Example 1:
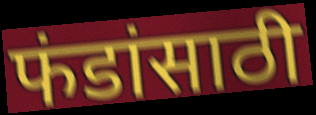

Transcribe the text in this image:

फंडांसाठी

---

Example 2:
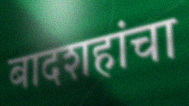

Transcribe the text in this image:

बादशहांचा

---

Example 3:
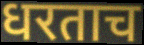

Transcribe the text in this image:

धरताच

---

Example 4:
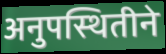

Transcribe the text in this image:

अनुपस्थितीने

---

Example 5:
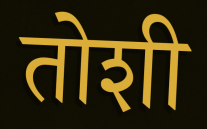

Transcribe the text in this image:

तोशी